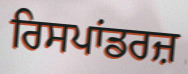
ਰਿਸਪਾਂਡਰਜ਼